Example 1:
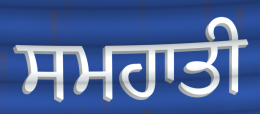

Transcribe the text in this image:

ਸਮਹਾਤੀ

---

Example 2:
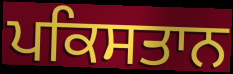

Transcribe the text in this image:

ਪਕਿਸਤਾਨ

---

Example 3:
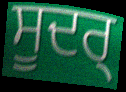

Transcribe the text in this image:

ਸੂਦਰ੍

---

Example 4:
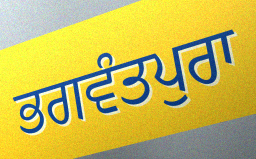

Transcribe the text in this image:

ਭਗਵੰਤਪੁਰਾ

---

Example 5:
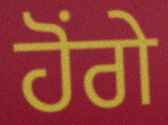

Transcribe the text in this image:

ਹੋਂਗੇ